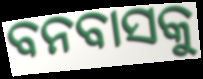
ବନବାସକୁ